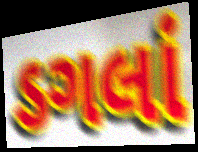
ડગલાં